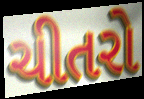
ચીતરો